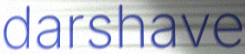
darshave